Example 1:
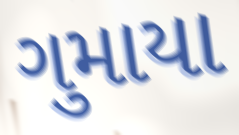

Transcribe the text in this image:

ગુમાયા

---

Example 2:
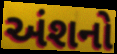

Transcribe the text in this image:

અંશનો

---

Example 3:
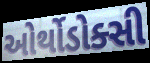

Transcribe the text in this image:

ઓર્થોડોક્સી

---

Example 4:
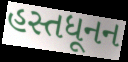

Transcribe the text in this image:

હસ્તધૂનન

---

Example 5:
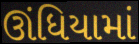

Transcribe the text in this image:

ઊંધિયામાં